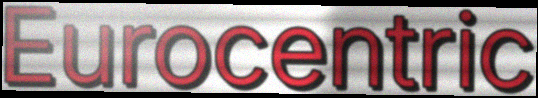
Eurocentric